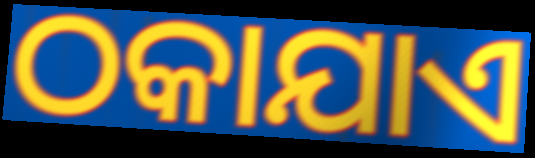
ଠକାଯାଏ